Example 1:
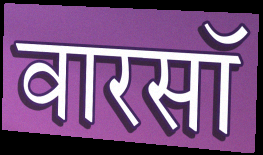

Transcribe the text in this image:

वारसॉ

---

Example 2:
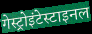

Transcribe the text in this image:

गेस्ट्रोइंटेस्टाइनल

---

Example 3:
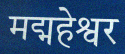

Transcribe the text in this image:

मद्महेश्वर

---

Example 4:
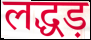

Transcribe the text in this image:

लद्धड़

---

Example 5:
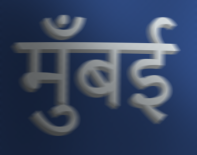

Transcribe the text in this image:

मुँबई